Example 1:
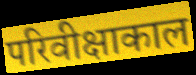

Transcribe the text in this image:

परिवीक्षाकाल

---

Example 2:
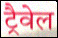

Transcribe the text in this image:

ट्रैवेल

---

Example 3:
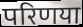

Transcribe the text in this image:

परिणया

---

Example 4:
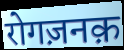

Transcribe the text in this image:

रोगज़नक़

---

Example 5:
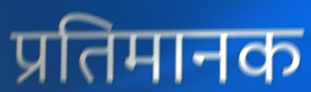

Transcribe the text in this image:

प्रतिमानक